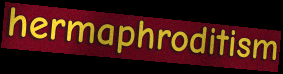
hermaphroditism